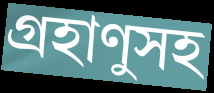
গ্রহাণুসহ